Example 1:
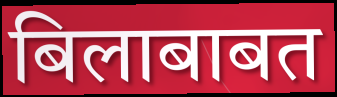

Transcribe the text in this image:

बिलाबाबत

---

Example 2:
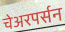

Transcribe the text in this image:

चेअरपर्सन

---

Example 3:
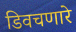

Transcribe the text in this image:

डिवचणारे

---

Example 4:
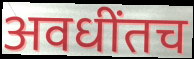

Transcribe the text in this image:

अवधींतच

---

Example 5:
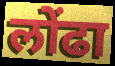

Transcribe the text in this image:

लोंढा